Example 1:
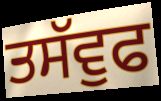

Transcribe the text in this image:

ਤਸੱਵੁਫ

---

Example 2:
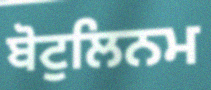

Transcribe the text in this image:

ਬੋਟੁਲਿਨਮ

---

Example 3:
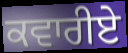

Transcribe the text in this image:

ਕਵਾਰੀਏ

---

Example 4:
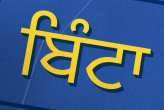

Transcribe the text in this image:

ਬਿੰਟਾ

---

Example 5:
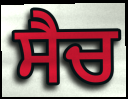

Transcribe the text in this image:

ਸੈਚ